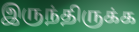
இருந்திருக்க